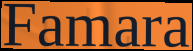
Famara